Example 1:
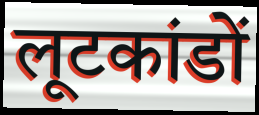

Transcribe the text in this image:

लूटकांडों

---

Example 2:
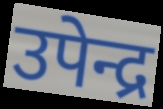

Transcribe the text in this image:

उपेन्द्र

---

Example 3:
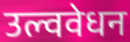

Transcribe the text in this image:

उल्ववेधन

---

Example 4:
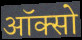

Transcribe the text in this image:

ऑक्सो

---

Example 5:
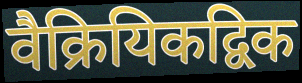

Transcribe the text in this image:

वैक्रियिकद्विक